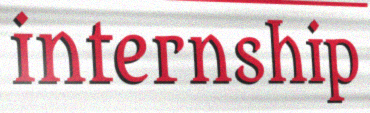
internship